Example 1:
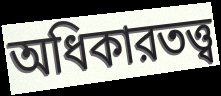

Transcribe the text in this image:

অধিকারতত্ত্ব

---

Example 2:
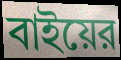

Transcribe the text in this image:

বাইয়ের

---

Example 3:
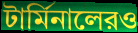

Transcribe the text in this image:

টার্মিনালেরও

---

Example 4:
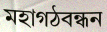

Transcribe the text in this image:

মহাগঠবন্ধন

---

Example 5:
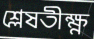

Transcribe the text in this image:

শ্লেষতীক্ষ্ণ